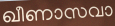
ഖീണാസവാ